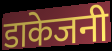
डाकेजनी